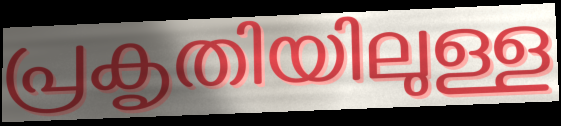
പ്രകൃതിയിലുള്ള